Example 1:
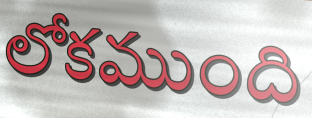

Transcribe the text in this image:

లోకముంది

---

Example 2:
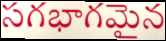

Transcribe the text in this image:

సగభాగమైన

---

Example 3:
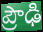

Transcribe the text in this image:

ప్రౌఢి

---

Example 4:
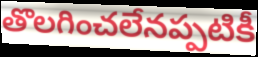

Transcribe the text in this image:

తొలగించలేనప్పటికీ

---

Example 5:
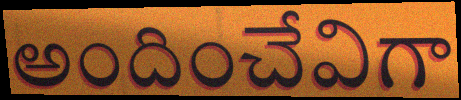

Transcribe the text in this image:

అందించేవిగా